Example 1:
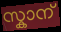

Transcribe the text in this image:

സ്കാന്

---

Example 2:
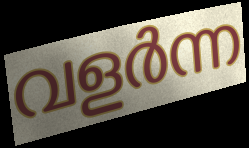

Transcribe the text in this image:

വളർന്ന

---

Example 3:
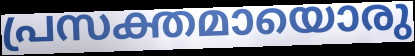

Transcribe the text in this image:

പ്രസക്തമായൊരു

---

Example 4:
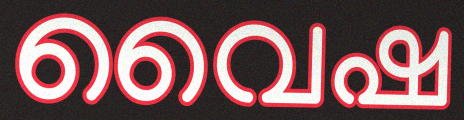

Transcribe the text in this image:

വൈഷ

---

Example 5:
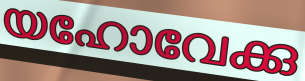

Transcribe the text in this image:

യഹോവേക്കു